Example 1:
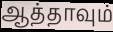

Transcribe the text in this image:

ஆத்தாவும்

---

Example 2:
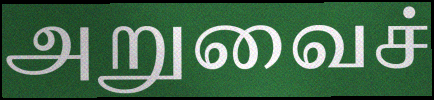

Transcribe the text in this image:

அறுவைச்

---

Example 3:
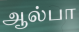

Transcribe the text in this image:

ஆல்பா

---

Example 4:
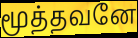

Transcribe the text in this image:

மூத்தவனே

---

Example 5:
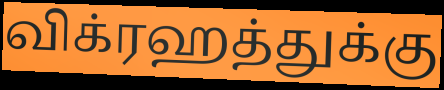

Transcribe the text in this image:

விக்ரஹத்துக்கு